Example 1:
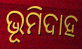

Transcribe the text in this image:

ଭୂମିଦାହ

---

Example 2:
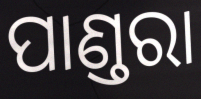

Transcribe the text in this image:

ପାଣ୍ଡରା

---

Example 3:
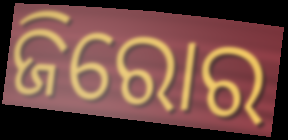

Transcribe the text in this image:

ଜିରୋର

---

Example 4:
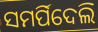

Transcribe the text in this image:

ସମର୍ପିଦେଲି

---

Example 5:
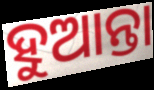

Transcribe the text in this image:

ହୁଆନ୍ତା